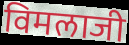
विमलाजी